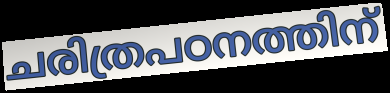
ചരിത്രപഠനത്തിന്